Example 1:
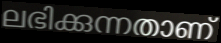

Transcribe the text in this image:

ലഭിക്കുന്നതാണ്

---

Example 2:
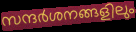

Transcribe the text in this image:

സന്ദർശനങ്ങളിലും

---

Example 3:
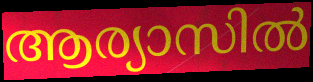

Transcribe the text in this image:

ആര്യാസിൽ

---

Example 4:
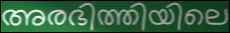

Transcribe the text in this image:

അരഭിത്തിയിലെ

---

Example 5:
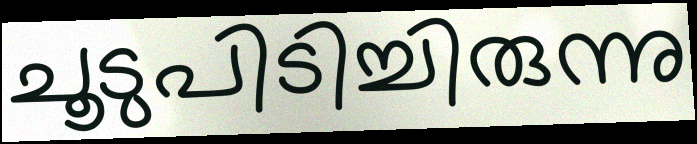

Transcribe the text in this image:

ചൂടുപിടിച്ചിരുന്നു